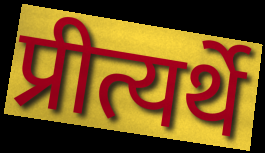
प्रीत्यर्थे